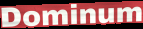
Dominum